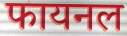
फायनल